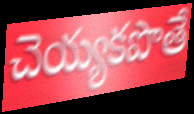
చెయ్యకపొతే